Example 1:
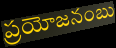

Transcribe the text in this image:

ప్రయోజనంబు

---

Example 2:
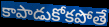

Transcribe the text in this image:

కాపాడుకోకపోతే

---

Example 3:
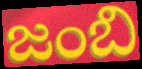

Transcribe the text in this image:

జంబి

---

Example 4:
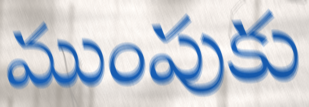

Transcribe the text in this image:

ముంపుకు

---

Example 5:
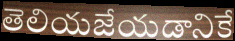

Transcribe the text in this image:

తెలియజేయడానికే